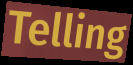
Telling